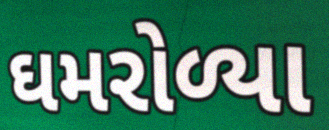
ઘમરોળ્યા